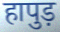
हापुड़